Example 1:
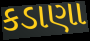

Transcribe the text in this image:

કડાણા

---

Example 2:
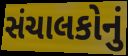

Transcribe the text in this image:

સંચાલકોનું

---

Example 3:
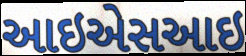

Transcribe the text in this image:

આઇએસઆઇ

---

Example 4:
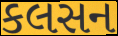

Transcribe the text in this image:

કલસન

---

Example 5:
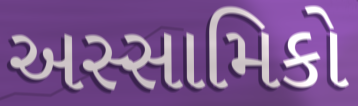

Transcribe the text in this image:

અસ્સામિકો